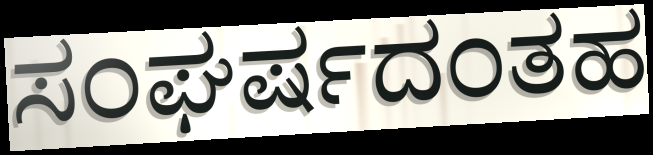
ಸಂಘರ್ಷದಂತಹ